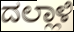
ದಲ್ಲಾಳಿ